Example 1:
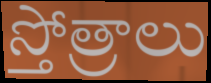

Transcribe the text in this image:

స్తోత్రాలు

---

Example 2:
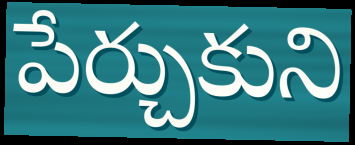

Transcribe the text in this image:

పేర్చుకుని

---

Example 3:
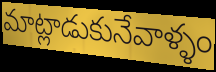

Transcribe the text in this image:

మాట్లాడుకునేవాళ్ళం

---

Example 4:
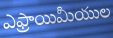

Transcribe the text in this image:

ఎఫ్రాయిమీయుల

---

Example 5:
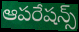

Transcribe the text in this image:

ఆపరేషన్స్